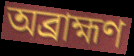
অব্রাহ্মণ